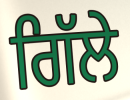
ਗਿੱਲੇ